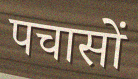
पचासों